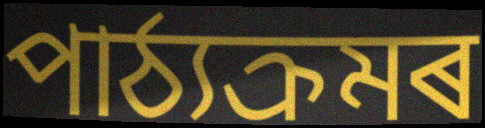
পাঠ্যক্ৰমৰ